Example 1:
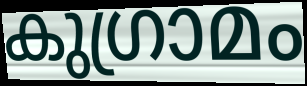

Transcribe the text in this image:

കുഗ്രാമം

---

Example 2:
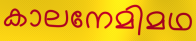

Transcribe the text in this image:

കാലനേമിമഥ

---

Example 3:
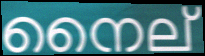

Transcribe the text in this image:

നൈല്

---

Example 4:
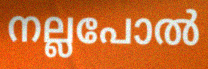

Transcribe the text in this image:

നല്ലപോൽ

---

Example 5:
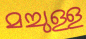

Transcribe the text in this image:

മച്ചുള്ള